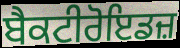
ਬੈਕਟੀਰੋਇਡਜ਼